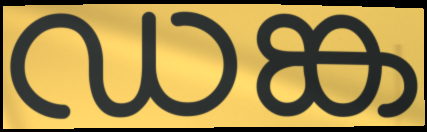
ഡങ്ക